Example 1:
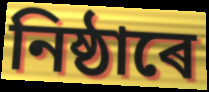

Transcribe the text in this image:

নিষ্ঠাৰে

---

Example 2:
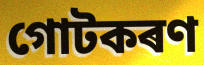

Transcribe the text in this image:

গোটকৰণ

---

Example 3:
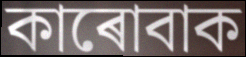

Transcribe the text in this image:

কাৰোবাক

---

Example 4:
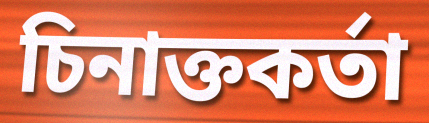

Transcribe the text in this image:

চিনাক্তকৰ্তা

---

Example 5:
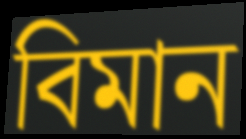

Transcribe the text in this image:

বিমান